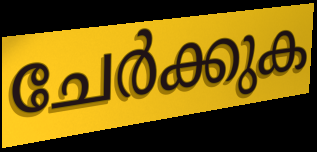
ചേർക്കുക